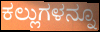
ಕಲ್ಲುಗಳನ್ನೂ